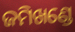
ଜମିଖଣ୍ଡେ